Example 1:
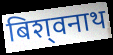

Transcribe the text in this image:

बिश्वनाथ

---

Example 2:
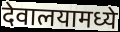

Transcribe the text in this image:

देवालयामध्ये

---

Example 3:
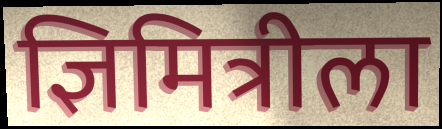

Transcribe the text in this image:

ज्ञिमित्रीला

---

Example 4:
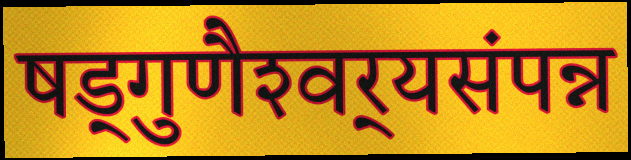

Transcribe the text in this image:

षड्‌गुणैश्वर्यसंपन्न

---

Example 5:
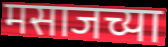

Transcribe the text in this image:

मसाजच्या